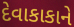
દેવાકાકાને